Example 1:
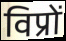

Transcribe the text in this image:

विप्रों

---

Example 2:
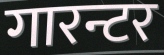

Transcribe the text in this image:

गारन्टर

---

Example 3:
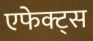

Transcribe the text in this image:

एफेक्ट्स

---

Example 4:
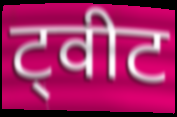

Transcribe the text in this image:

ट्‌वीट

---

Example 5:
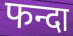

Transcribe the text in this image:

फन्दा